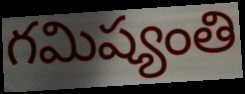
గమిష్యంతి